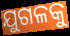
ଯୁଗଳକୁ